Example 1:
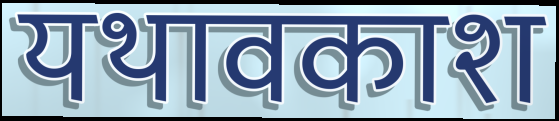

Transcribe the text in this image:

यथावकाश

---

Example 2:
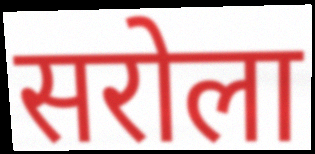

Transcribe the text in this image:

सरोला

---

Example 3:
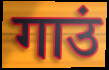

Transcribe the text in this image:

गाउं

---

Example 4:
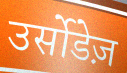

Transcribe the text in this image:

उर्सोडेज़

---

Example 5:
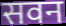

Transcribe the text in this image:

सवन